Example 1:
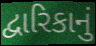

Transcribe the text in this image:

દ્વારિકાનું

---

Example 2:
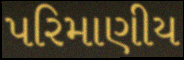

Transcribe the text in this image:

પરિમાણીય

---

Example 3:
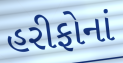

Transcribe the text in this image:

હરીફોનાં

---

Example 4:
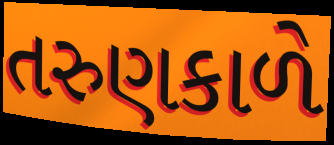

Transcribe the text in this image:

તરુણકાળે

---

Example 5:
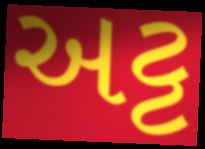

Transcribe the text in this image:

અટ્ટ